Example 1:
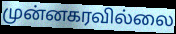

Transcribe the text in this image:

முன்னகரவில்லை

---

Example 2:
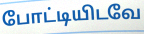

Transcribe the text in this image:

போட்டியிடவே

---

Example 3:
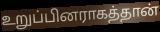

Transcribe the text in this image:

உறுப்பினராகத்தான்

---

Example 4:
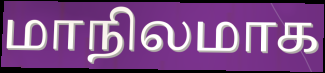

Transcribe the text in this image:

மாநிலமாக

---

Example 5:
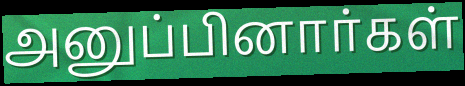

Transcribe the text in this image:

அனுப்பினார்கள்